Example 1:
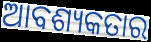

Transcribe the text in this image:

ଆବଶ୍ୟକତାର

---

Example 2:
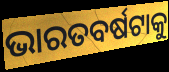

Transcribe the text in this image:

ଭାରତବର୍ଷଟାକୁ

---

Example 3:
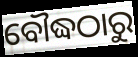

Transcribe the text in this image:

ବୌଦ୍ଧଠାରୁ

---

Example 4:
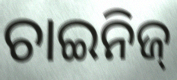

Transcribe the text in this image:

ଚାଇନିଜ୍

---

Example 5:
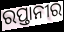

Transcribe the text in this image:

ରପ୍ତାନୀର